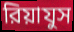
রিয়াযুস